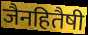
जैनहितैषी